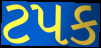
ટપક